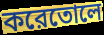
করেতোলে